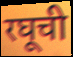
रघूची